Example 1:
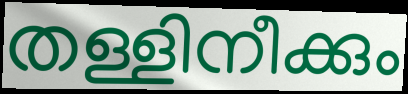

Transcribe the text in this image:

തള്ളിനീക്കും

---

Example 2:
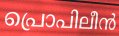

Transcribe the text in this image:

പ്രൊപിലീൻ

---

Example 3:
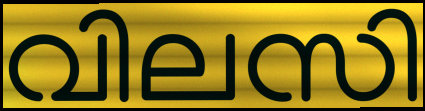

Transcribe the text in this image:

വിലസി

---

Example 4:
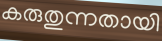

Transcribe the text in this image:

കരുതുന്നതായി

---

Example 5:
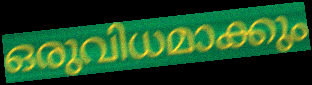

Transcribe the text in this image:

ഒരുവിധമാക്കും